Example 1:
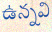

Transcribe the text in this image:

ఉన్నవి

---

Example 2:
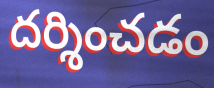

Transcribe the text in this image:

దర్శించడం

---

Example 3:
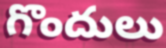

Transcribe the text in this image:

గొందులు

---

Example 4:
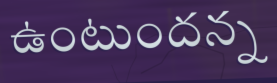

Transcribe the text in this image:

ఉంటుందన్న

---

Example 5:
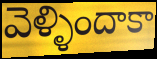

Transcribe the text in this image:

వెళ్ళిందాకా